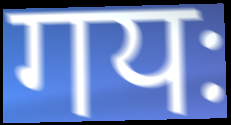
गयः